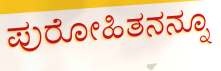
ಪುರೋಹಿತನನ್ನೂ